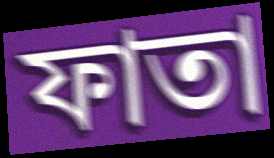
ফাতা